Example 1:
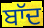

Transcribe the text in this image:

ਬਾੱਦ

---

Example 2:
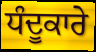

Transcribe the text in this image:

ਧੰਦੂਕਾਰੇ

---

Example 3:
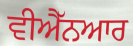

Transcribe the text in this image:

ਵੀਐੱਨਆਰ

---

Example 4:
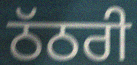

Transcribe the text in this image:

ਠੱਠਰੀ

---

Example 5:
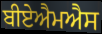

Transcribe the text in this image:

ਬੀਏਐਮਐਸ